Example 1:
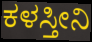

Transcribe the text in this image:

ಕಳಸ್ತೀನಿ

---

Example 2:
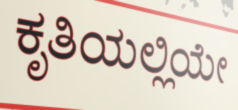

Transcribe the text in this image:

ಕೃತಿಯಲ್ಲಿಯೇ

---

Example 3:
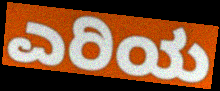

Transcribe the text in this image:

ಎರಿಯ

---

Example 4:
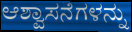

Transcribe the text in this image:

ಆಶ್ವಾಸನೆಗಳನ್ನು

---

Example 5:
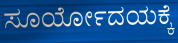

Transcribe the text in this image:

ಸೂರ್ಯೋದಯಕ್ಕೆ